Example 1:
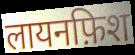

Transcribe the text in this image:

लायनफ़िश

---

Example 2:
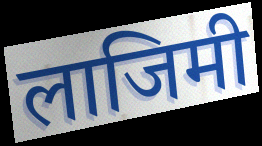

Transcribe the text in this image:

लाजिमी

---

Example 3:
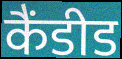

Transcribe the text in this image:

कैंडीड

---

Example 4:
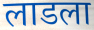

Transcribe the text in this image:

लाडला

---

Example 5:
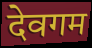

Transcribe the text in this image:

देवगम